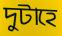
দুটাহে